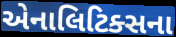
એનાલિટિક્સના